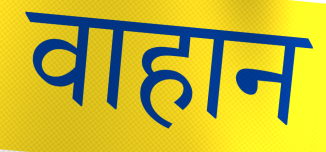
वाहान